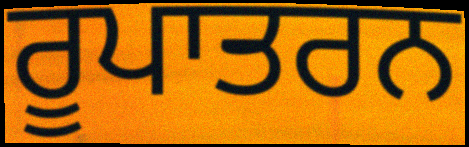
ਰੂਪਾਤਰਨ